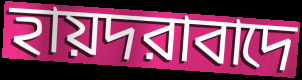
হায়দরাবাদে